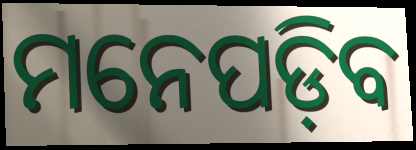
ମନେପଡ଼ିବ